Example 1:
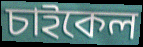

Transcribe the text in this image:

চাইকেল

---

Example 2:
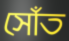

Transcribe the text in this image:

সোঁত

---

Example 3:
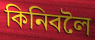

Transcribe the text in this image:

কিনিবলৈ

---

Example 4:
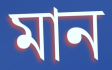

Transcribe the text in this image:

মান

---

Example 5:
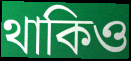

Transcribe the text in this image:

থাকিও